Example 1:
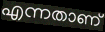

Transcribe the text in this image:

എന്നതാണ്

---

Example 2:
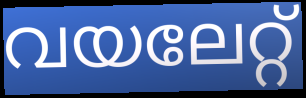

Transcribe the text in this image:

വയലേറ്റ്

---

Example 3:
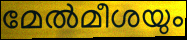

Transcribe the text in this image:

മേൽമീശയും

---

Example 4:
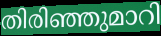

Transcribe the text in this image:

തിരിഞ്ഞുമാറി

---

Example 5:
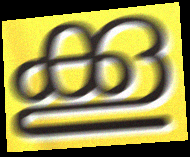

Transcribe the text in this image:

ക്കൂ